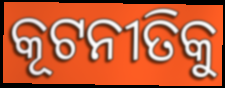
କୂଟନୀତିକୁ